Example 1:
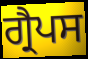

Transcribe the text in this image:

ਗ੍ਰੈਪਸ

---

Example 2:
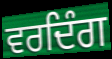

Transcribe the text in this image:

ਵਰਦਿੰਗ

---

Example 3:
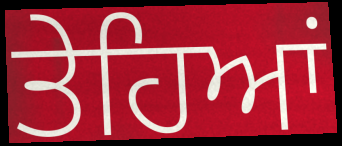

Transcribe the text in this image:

ਤੇਹਿਆਂ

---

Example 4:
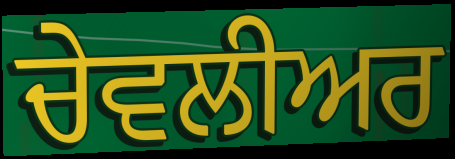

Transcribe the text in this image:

ਚੇਵਲੀਅਰ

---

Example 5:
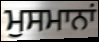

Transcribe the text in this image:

ਮੁਸਮਾਨਾਂ